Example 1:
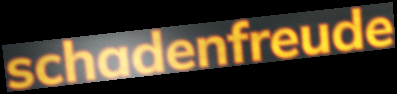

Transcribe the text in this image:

schadenfreude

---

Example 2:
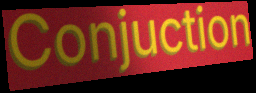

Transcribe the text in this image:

Conjuction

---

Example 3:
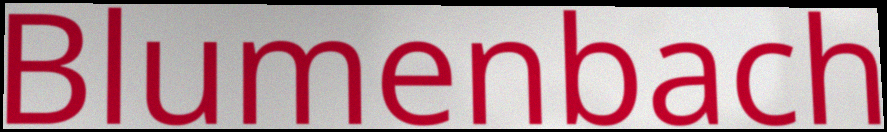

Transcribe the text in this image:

Blumenbach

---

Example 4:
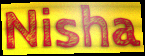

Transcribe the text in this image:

Nisha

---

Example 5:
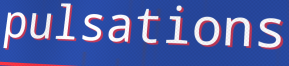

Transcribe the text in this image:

pulsations